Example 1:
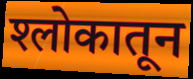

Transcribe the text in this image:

श्लोकातून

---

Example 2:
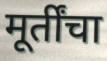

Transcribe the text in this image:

मूर्तींचा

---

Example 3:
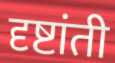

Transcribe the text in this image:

दृष्टांती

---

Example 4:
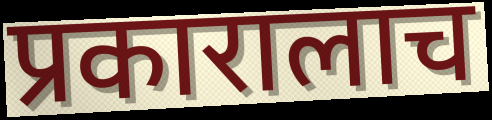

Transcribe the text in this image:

प्रकारालाच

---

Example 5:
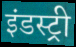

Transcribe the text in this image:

इंडस्ट्री